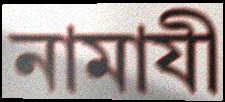
নামাযী